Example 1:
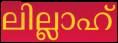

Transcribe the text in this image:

ലില്ലാഹ്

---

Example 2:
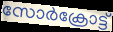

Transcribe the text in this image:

സോർക്രോട്ട്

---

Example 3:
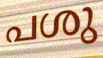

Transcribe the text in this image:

പശു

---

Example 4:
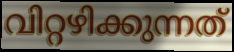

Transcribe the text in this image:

വിറ്റഴിക്കുന്നത്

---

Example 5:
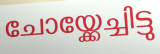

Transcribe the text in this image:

ചോയ്ക്കേച്ചിട്ടു